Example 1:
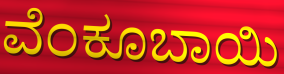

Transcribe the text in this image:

ವೆಂಕೂಬಾಯಿ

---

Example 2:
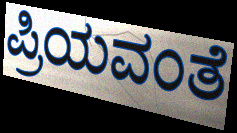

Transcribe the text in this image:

ಪ್ರಿಯವಂತೆ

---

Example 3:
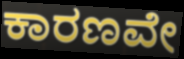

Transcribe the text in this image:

ಕಾರಣವೇ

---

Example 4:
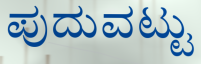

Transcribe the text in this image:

ಪುದುವಟ್ಟು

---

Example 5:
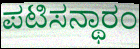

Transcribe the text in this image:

ಪಟಿಸನ್ಥಾರಂ